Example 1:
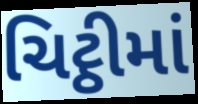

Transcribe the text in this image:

ચિટ્ઠીમાં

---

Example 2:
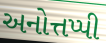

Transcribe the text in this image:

અનોત્તપ્પી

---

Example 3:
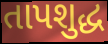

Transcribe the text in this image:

તાપશુદ્ધ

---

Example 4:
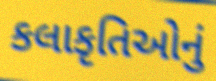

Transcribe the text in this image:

કલાકૃતિઓનું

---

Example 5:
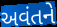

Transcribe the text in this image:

અવંતને